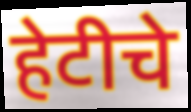
हेटीचे